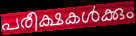
പരീക്ഷകൾക്കും